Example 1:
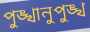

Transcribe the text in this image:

পুঙ্খানুপুঙ্খ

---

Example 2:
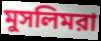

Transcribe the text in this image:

মুসলিমরা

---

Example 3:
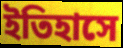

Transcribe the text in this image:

ইতিহাসে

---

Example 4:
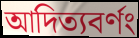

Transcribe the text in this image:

আদিত্যবর্ণং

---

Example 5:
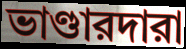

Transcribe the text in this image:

ভাণ্ডারদারা